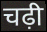
चढ़ी